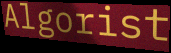
Algorist